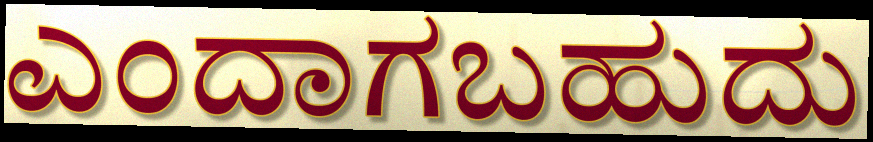
ಎಂದಾಗಬಹುದು